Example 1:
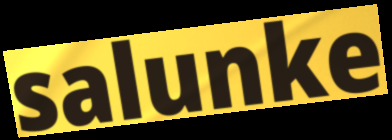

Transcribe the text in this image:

salunke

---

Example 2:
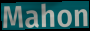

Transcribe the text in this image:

Mahon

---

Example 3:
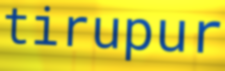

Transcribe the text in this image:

tirupur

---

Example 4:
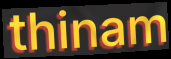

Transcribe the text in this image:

thinam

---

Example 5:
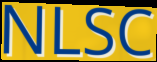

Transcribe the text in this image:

NLSC